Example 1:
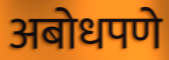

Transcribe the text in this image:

अबोधपणे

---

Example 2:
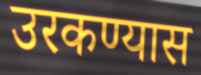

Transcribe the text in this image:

उरकण्यास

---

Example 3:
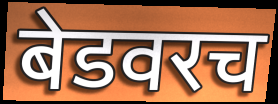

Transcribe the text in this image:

बेडवरच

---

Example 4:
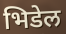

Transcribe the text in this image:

भिडेल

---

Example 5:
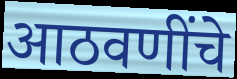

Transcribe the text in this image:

आठवणींचे